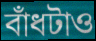
বাঁধটাও